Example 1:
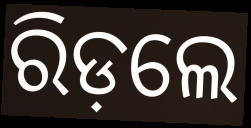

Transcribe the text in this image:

ରିଡ଼ଲେ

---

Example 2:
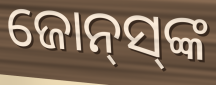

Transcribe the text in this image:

ଜୋନ୍‌ସ୍‌ଙ୍କ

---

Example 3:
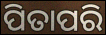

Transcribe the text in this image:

ପିତାପରି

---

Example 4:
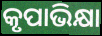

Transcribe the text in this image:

କୃପାଭିକ୍ଷା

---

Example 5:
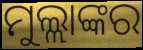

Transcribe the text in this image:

ମୁଲ୍ଲାଙ୍କର